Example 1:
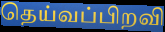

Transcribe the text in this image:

தெய்வப்பிறவி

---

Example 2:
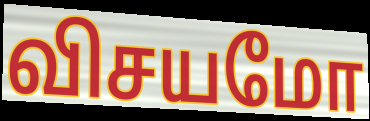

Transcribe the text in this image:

விசயமோ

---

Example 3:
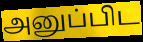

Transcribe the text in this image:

அனுப்பிட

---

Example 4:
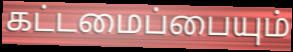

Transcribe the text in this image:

கட்டமைப்பையும்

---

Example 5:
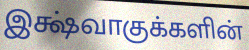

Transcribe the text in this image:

இக்ஷ்வாகுக்களின்